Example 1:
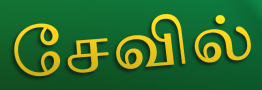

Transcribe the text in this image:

சேவில்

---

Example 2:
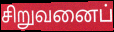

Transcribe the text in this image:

சிறுவனைப்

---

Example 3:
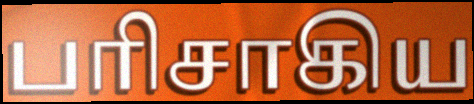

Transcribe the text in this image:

பரிசாகிய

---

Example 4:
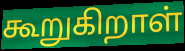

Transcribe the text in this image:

கூறுகிறாள்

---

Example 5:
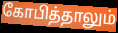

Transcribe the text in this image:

கோபித்தாலும்